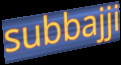
subbajji